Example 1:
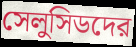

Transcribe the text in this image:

সেলুসিডদের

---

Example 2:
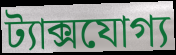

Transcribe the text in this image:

ট্যাক্সযোগ্য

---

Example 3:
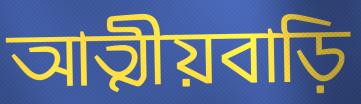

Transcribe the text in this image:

আত্মীয়বাড়ি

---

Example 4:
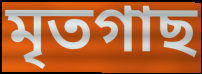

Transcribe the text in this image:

মৃতগাছ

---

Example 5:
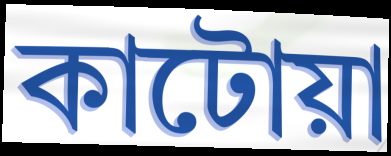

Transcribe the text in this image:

কাটোয়া